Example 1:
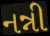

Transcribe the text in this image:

નન્ની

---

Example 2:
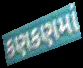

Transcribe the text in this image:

કણકણમાં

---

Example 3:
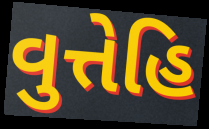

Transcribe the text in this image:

વુત્તેહિ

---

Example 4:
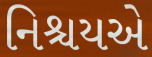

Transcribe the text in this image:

નિશ્ચયએ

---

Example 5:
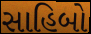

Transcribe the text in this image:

સાહિબો